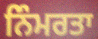
ਨਿੰਮਰਤਾ